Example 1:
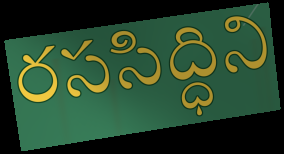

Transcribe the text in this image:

రససిద్ధిని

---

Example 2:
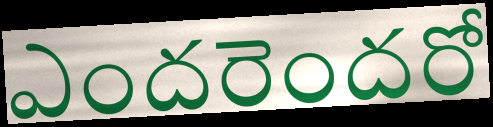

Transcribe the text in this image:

ఎందరెందరో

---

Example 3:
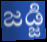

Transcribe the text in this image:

జడ్జి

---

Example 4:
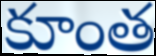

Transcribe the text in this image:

కూంత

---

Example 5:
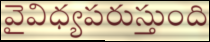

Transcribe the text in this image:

వైవిధ్యపరుస్తుంది